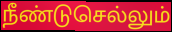
நீண்டுசெல்லும்